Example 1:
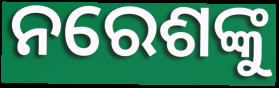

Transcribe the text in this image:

ନରେଶଙ୍କୁ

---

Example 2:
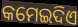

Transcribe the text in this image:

କମେଇଦିଏ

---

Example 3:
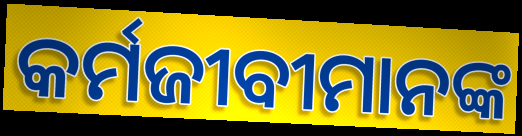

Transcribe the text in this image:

କର୍ମଜୀବୀମାନଙ୍କ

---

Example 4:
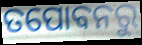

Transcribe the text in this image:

ତପୋବନରୁ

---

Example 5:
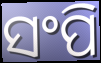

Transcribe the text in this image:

ସଂପି